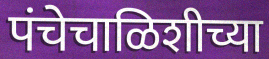
पंचेचाळिशीच्या